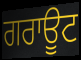
ਗਰਾਊਟ